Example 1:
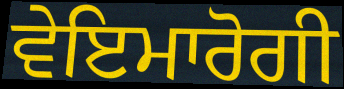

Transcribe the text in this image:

ਵੇਇਮਾਰੋਗੀ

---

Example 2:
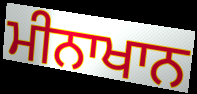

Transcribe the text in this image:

ਮੀਨਾਖਾਨ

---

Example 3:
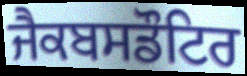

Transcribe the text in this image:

ਜੈਕਬਸਡੌਟਿਰ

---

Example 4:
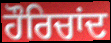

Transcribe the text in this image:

ਹੌਰਿਚਾਂਦ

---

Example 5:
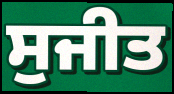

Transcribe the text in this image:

ਸੁਜੀਤ